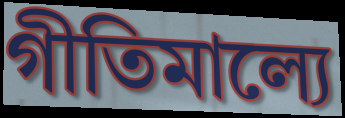
গীতিমাল্যে